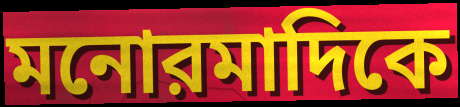
মনোরমাদিকে